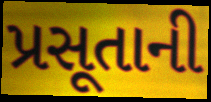
પ્રસૂતાની